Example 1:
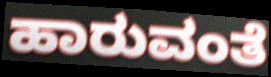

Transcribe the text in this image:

ಹಾರುವಂತೆ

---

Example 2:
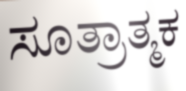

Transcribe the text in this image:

ಸೂತ್ರಾತ್ಮಕ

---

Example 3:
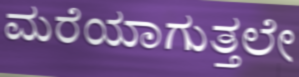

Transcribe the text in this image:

ಮರೆಯಾಗುತ್ತಲೇ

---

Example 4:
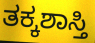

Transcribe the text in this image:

ತಕ್ಕಶಾಸ್ತಿ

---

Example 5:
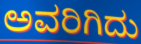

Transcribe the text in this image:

ಅವರಿಗಿದು